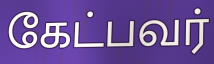
கேட்பவர்